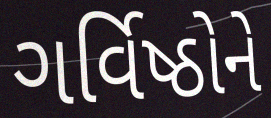
ગર્વિષ્ઠોને